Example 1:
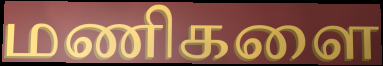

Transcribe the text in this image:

மணிகளை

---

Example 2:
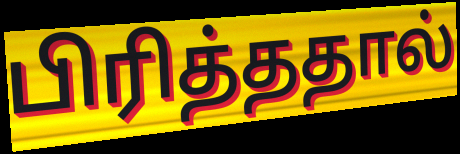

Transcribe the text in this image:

பிரித்ததால்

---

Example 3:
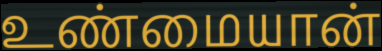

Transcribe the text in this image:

உண்மையான்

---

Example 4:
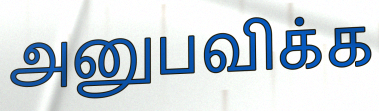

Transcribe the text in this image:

அனுபவிக்க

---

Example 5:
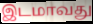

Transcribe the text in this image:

இடமாவது